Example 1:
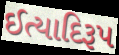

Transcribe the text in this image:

ઈત્યાદિરૂપ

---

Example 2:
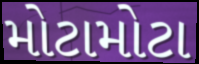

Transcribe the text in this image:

મોટામોટા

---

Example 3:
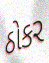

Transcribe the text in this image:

ઠોકર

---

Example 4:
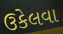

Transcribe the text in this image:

ઉકેલવા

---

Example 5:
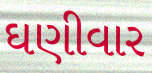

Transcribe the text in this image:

ઘણીવાર